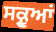
ਸਕ੍ਰੂਆਂ